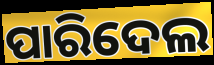
ପାରିଦେଲ